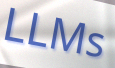
LLMs